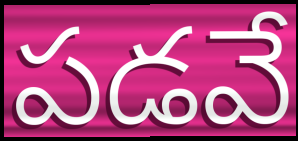
పడవే